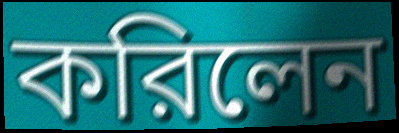
করিলেন